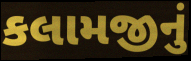
કલામજીનું